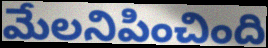
మేలనిపించింది